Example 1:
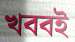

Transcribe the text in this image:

খববই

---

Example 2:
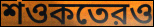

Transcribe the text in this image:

শওকতেরও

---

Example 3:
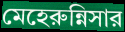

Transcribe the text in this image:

মেহেরুন্নিসার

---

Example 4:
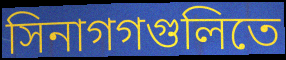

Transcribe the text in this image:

সিনাগগগুলিতে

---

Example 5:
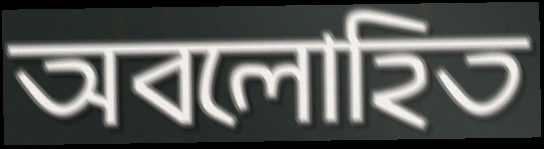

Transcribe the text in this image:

অবলোহিত